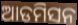
ଆଡମିସନ